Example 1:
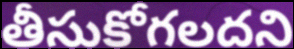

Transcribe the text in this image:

తీసుకోగలదని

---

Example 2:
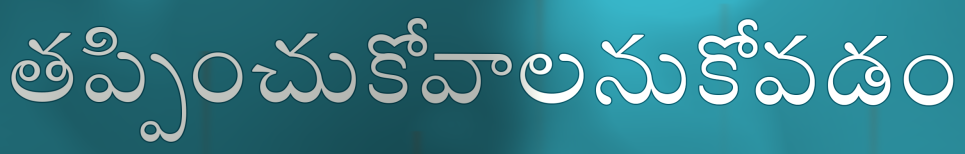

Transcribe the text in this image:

తప్పించుకోవాలనుకోవడం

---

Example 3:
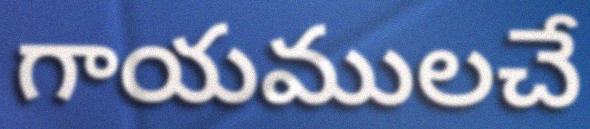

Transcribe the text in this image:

గాయములచే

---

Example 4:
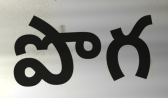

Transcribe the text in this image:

పొగ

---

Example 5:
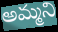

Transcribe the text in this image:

అమ్మని